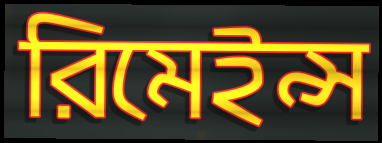
রিমেইন্স